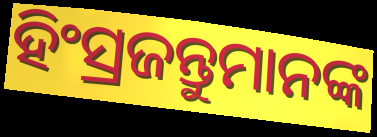
ହିଂସ୍ରଜନ୍ତୁମାନଙ୍କ